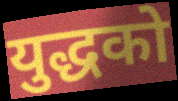
युद्धको